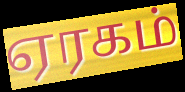
ஏரகம்